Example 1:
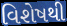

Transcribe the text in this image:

વિશેષથી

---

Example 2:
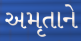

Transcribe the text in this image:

અમૃતાને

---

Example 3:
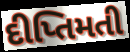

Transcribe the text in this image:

દીપ્તિમતી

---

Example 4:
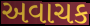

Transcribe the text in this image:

અવાચક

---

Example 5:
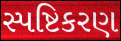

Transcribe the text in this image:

સ્પષ્ટિકરણ